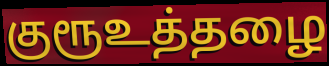
குரூஉத்தழை